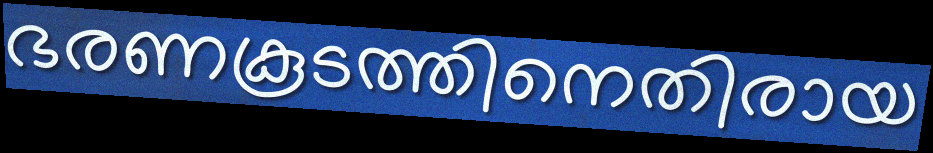
ഭരണകൂടത്തിനെതിരായ